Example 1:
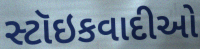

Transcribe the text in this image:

સ્ટૉઇકવાદીઓ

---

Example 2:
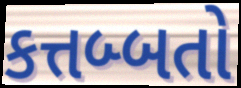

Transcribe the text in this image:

કત્તબ્બતો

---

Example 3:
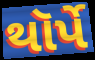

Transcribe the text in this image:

થૉર્પે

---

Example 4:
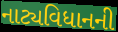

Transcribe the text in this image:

નાટ્યવિધાનની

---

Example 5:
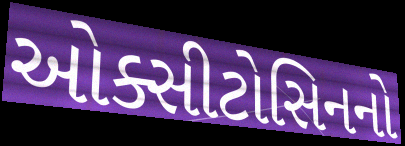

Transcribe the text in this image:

ઓક્સીટોસિનનો